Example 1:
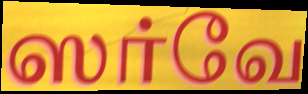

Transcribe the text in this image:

ஸர்வே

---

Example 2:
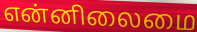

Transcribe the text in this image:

என்னிலைமை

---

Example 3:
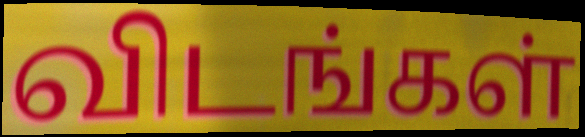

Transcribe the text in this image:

விடங்கள்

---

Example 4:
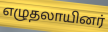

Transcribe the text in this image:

எழுதலாயினர்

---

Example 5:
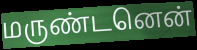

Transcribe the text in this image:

மருண்டனென்